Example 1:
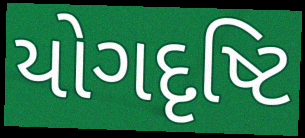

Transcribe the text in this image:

યોગદૃષ્ટિ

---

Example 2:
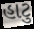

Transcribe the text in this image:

હાટુ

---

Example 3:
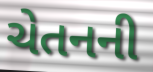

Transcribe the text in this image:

ચેતનની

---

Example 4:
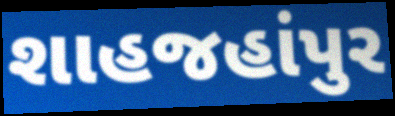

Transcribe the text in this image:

શાહજહાંપુર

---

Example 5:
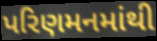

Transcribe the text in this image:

પરિણમનમાંથી